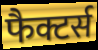
फैक्टर्स